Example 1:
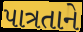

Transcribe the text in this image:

પાત્રતાને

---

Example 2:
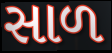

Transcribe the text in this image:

સાળ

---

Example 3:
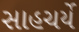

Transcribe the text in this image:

સાહચર્યે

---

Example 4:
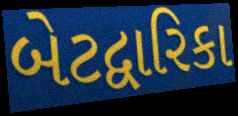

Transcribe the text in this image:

બેટદ્વારિકા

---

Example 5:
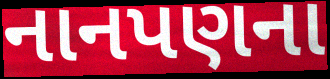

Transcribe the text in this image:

નાનપણના